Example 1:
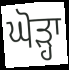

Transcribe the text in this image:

ਘੋੜ੍ਹਾ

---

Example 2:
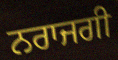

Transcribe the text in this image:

ਨਰਾਜਗੀ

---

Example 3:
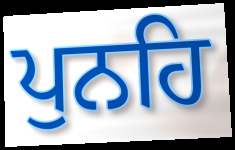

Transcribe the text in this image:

ਪੁਨਹਿ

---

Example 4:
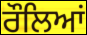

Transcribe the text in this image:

ਰੌਲਿਆਂ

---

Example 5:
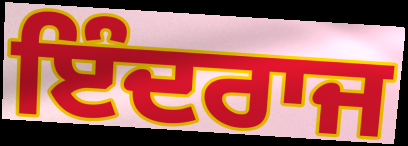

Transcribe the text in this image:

ਇੰਦਰਾਜ